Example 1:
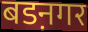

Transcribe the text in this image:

बडऩगर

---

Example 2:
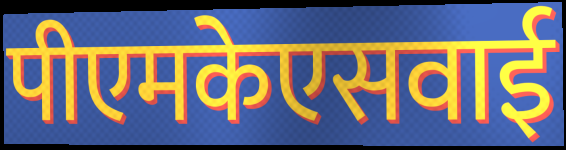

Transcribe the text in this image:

पीएमकेएसवाई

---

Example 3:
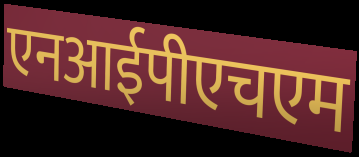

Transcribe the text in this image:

एनआईपीएचएम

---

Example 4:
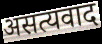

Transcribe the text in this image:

असत्यवाद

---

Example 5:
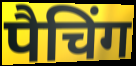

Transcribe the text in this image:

पैचिंग